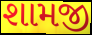
શામજી